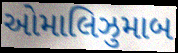
ઓમાલિઝુમાબ